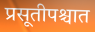
प्रसूतीपश्चात